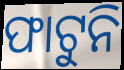
ଫାଟୁନି